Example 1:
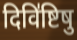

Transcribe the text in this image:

दिवि॑ष्टिषु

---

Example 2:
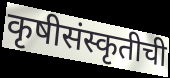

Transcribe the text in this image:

कृषीसंस्कृतीची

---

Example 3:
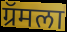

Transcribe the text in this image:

ग्रॅमला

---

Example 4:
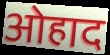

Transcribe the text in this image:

ओहाद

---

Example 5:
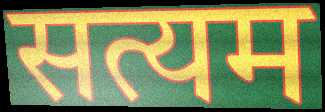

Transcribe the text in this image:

सत्यम